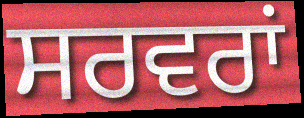
ਸਰਵਰਾਂ